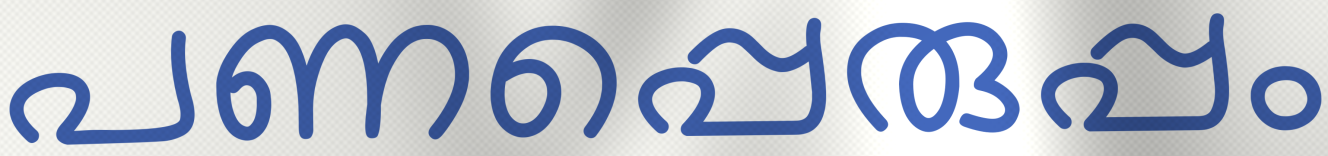
പണപ്പെരുപ്പം